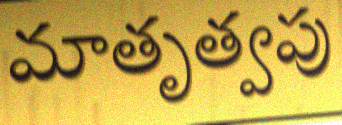
మాతృత్వపు